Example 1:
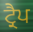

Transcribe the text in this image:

ਟ੍ਰੈਪ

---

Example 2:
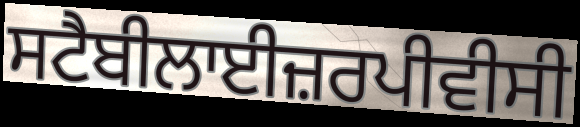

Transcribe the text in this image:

ਸਟੈਬੀਲਾਈਜ਼ਰਪੀਵੀਸੀ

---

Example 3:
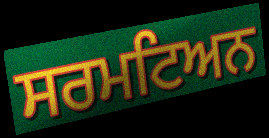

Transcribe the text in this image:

ਸਰਮਟਿਅਨ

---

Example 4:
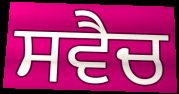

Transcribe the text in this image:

ਸਵੈਚ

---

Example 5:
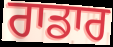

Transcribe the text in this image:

ਰਾਡਾਰ